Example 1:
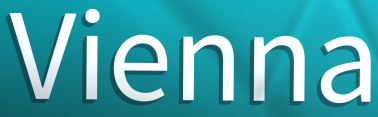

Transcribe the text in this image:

Vienna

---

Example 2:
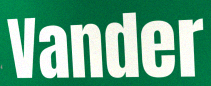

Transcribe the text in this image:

Vander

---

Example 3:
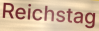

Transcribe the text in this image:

Reichstag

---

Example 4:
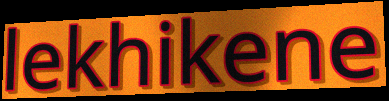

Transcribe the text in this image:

lekhikene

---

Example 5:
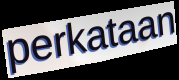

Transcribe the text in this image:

perkataan